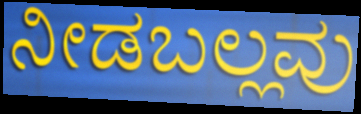
ನೀಡಬಲ್ಲವು